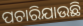
ପଚାରିଯାଉଛି